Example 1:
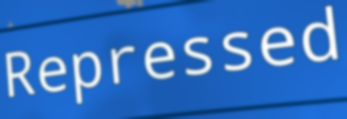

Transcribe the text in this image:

Repressed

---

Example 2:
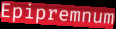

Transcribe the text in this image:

Epipremnum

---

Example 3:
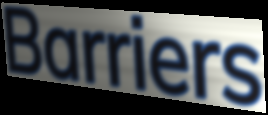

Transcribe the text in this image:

Barriers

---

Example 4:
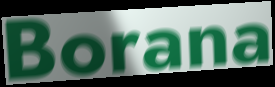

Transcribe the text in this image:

Borana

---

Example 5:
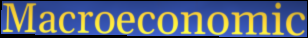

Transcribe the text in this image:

Macroeconomic